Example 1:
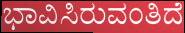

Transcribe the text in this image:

ಭಾವಿಸಿರುವಂತಿದೆ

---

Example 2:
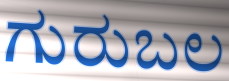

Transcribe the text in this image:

ಗುರುಬಲ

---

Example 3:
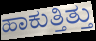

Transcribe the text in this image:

ಹಾಕುತ್ತಿತ್ತು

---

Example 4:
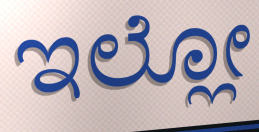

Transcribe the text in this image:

ಇಲ್ಲೋ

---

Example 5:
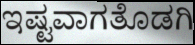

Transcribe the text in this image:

ಇಷ್ಟವಾಗತೊಡಗಿ